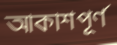
আকাশপূর্ণ